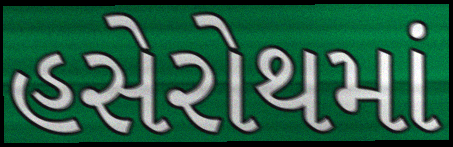
હસેરોથમાં